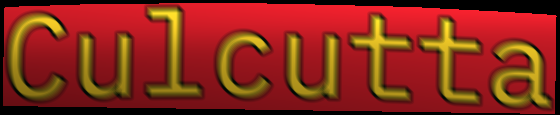
Culcutta